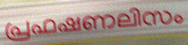
പ്രഫഷണലിസം